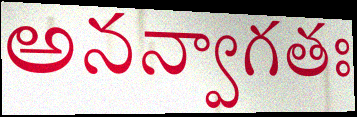
అనన్వాగతః